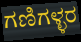
ಗಣಿಗಳ್ಳರ